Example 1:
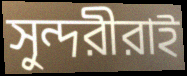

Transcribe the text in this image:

সুন্দরীরাই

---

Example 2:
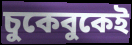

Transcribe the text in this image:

চুকেবুকেই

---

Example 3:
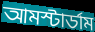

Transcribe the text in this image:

আমস্টার্ডাম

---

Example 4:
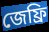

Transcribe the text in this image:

জেফ্রি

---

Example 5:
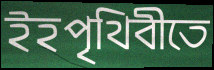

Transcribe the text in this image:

ইহপৃথিবীতে